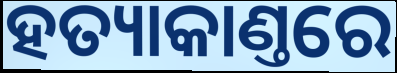
ହତ୍ୟାକାଣ୍ତରେ